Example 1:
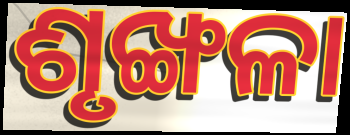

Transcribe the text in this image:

ଶୃଙ୍ଖଳା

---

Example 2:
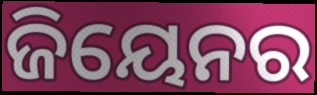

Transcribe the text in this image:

ଜିୟେନର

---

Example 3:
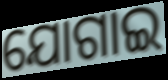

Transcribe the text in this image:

ଯୋଗାଇ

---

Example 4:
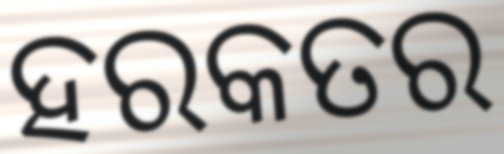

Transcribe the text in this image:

ହରକତର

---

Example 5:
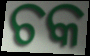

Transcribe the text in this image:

ଚକ